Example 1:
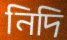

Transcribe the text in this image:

নিদি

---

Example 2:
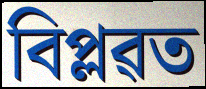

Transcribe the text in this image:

বিপ্লৱত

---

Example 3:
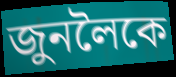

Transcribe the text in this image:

জুনলৈকে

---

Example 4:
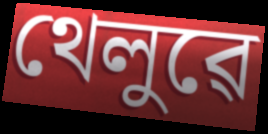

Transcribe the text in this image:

থেলুৱে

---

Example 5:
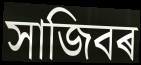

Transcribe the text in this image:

সাজিবৰ